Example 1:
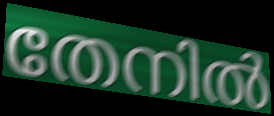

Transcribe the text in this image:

തേനിൽ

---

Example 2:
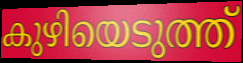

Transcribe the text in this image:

കുഴിയെടുത്ത്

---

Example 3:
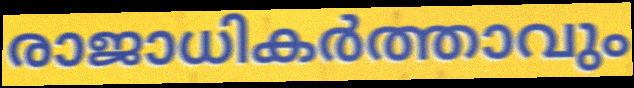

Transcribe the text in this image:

രാജാധികർത്താവും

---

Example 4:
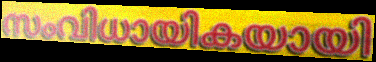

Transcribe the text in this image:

സംവിധായികയായി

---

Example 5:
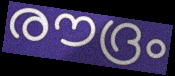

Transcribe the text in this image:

രൗദ്രം